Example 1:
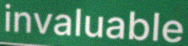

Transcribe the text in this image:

invaluable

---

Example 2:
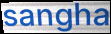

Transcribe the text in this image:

sangha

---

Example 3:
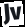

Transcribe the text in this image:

Jv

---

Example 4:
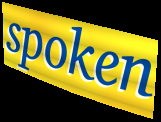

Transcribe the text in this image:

spoken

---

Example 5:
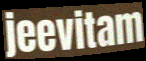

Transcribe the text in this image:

jeevitam